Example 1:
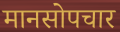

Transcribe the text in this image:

मानसोपचार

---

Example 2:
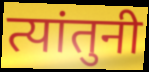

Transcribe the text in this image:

त्यांतुनी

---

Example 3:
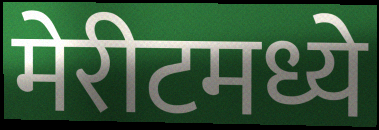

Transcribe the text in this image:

मेरीटमध्ये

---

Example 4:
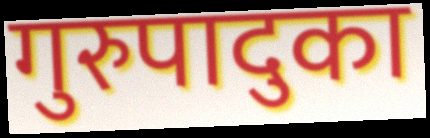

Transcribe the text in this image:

गुरुपादुका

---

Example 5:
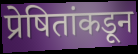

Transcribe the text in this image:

प्रेषितांकडून